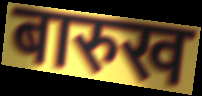
बारुख